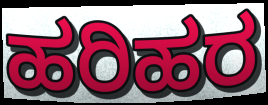
ಹರಿಹರ